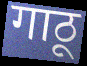
गाठू